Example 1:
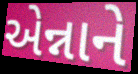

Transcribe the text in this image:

એન્નાને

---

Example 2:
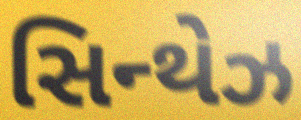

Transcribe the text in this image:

સિન્થેઝ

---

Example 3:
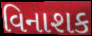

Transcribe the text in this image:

વિનાશક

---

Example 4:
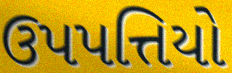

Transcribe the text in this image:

ઉપપત્તિયો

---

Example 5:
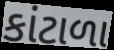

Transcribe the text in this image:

કાંટાળા